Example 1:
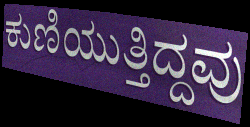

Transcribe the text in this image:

ಕುಣಿಯುತ್ತಿದ್ದವು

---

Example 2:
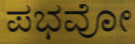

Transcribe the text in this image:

ಪಭವೋ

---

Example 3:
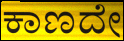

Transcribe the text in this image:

ಕಾಣದೇ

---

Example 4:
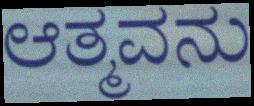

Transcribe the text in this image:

ಆತ್ಮವನು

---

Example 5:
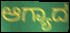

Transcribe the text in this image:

ಆಗ್ಯಾದ